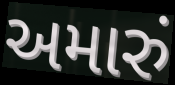
અમારું